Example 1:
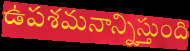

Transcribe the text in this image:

ఉపశమనాన్నిస్తుంది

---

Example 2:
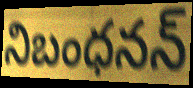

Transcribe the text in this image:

నిబంధనన్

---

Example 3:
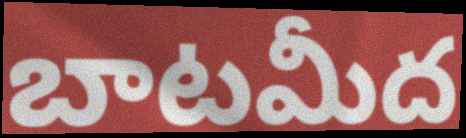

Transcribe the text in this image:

బాటమీద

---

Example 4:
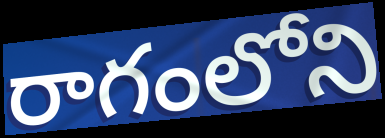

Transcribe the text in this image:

రాగంలోని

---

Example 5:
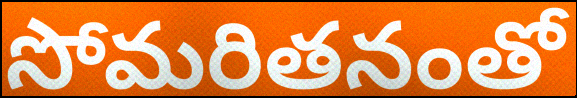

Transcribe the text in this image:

సోమరితనంతో